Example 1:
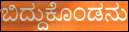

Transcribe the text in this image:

ಬಿದ್ದುಕೊಂಡನು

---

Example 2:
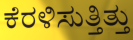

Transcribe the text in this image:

ಕೆರಳಿಸುತ್ತಿತ್ತು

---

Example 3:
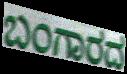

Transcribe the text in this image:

ಬಂಗಾರದ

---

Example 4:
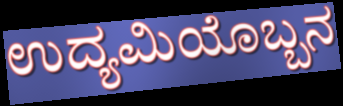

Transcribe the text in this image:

ಉದ್ಯಮಿಯೊಬ್ಬನ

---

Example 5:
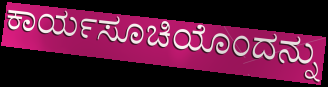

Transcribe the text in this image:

ಕಾರ್ಯಸೂಚಿಯೊಂದನ್ನು